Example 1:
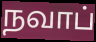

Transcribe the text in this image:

நவாப்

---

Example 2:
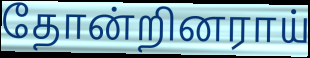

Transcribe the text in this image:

தோன்றினராய்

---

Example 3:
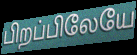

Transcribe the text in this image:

பிறப்பிலேயே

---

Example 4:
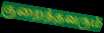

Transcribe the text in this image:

குறைந்தவரும்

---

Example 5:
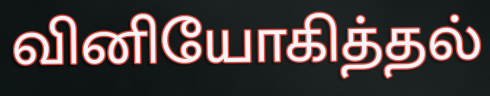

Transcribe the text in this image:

வினியோகித்தல்